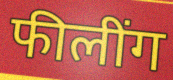
फीलींग